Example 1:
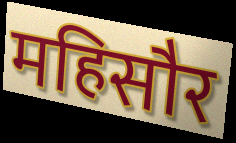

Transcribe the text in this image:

महिसौर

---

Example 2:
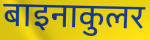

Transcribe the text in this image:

बाइनाकुलर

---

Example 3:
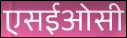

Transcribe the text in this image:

एसईओसी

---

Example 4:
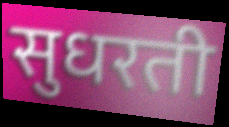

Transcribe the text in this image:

सुधरती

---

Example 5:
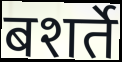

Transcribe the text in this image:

बशर्ते